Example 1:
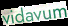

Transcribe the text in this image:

vidavum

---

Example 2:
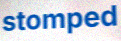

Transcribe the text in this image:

stomped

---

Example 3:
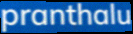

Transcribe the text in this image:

pranthalu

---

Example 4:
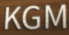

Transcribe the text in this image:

KGM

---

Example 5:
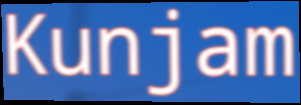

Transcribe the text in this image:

Kunjam